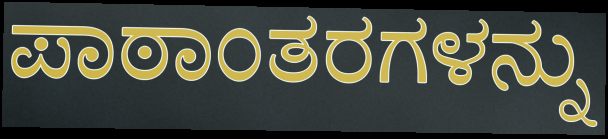
ಪಾಠಾಂತರಗಳನ್ನು